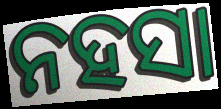
ନହସା